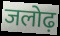
जलोढ़